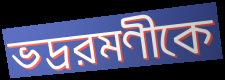
ভদ্ররমণীকে